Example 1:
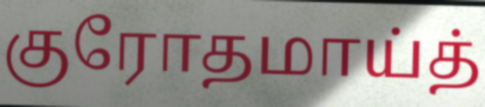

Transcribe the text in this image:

குரோதமாய்த்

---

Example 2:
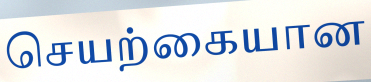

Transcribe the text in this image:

செயற்கையான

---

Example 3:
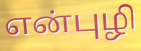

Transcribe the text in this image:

என்புழி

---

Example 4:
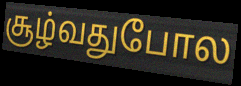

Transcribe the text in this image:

சூழ்வதுபோல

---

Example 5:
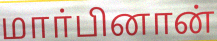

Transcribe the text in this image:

மார்பினான்